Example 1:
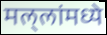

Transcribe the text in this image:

मल्लांमध्ये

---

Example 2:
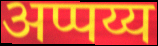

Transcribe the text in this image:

अप्पय्य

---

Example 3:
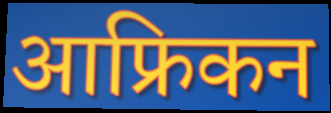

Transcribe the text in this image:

आफ्रिकन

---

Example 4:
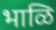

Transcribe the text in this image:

भाळि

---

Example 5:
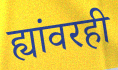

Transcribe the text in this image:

ह्यांवरही